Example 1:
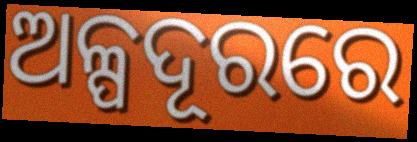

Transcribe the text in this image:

ଅଳ୍ପଦୂରରେ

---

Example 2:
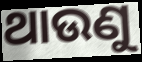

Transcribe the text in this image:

ଥାଉଣୁ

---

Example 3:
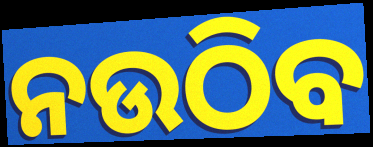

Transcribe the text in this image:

ନଉଠିବ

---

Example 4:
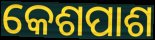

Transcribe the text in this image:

କେଶପାଶ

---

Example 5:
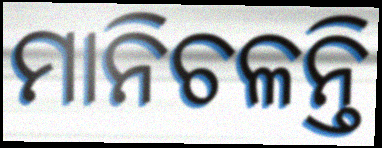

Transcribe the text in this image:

ମାନିଚଳନ୍ତି